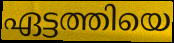
ഏട്ടത്തിയെ